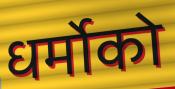
धर्मोको